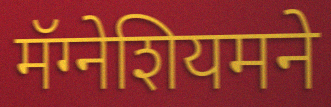
मॅग्नेशियमने